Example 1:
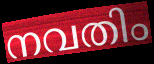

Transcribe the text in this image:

നവതിം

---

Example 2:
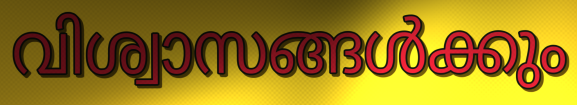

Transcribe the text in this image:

വിശ്വാസങ്ങൾക്കും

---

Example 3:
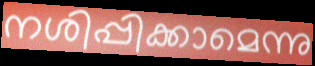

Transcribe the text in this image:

നശിപ്പിക്കാമെന്നു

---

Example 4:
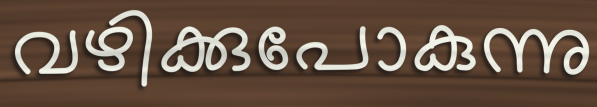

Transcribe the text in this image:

വഴിക്കുപോകുന്നു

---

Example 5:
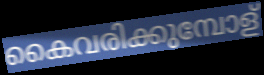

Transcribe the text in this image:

കൈവരിക്കുമ്പോള്